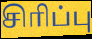
சிரிப்பு